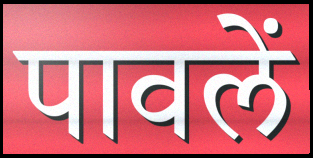
पावलें